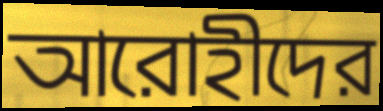
আরোহীদের